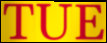
TUE